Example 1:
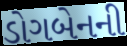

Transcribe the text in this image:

ડોગબેનની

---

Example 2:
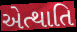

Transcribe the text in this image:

એત્થાતિ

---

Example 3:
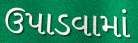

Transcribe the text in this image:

ઉપાડવામાં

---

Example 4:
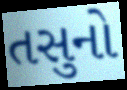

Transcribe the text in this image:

તસુનો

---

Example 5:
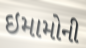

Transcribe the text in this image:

ઇમામોની